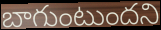
బాగుంటుందని